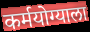
कर्मयोग्याला